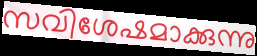
സവിശേഷമാക്കുന്നു